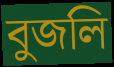
বুজলি